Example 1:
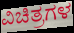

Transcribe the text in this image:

ವಿಚಿತ್ರಗಳ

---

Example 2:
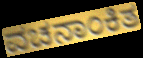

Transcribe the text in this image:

ವಚನಾಂಕಿತ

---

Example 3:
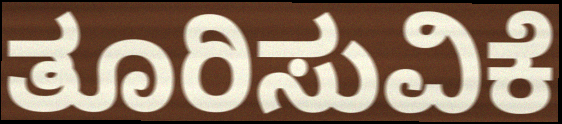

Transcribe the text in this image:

ತೂರಿಸುವಿಕೆ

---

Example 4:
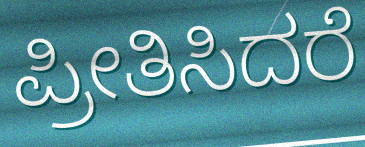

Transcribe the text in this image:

ಪ್ರೀತಿಸಿದರೆ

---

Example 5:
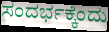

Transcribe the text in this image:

ಸಂದರ್ಭಕ್ಕೆಂದು